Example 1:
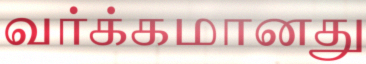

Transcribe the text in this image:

வர்க்கமானது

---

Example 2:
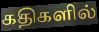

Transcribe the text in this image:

கதிகளில்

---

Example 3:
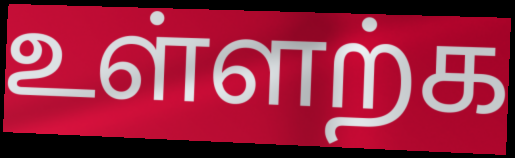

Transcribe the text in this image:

உள்ளற்க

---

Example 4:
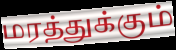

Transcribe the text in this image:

மரத்துக்கும்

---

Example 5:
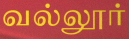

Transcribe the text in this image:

வல்லூர்